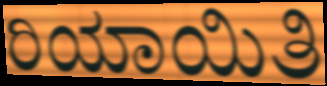
ರಿಯಾಯಿತಿ